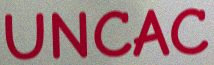
UNCAC